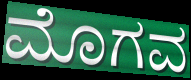
ಮೊಗವ